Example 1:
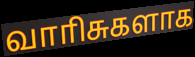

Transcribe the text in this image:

வாரிசுகளாக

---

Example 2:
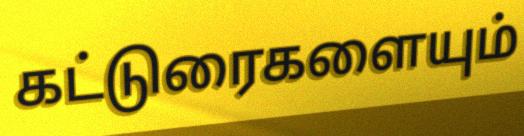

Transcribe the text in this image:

கட்டுரைகளையும்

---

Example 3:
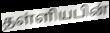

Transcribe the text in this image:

தள்ளியபின்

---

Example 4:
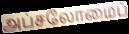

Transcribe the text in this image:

அப்சலோமைப்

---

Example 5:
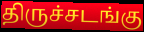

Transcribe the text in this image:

திருச்சடங்கு